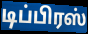
டிப்பிரஸ்